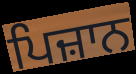
ਪਿਜ਼ਾਨ